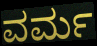
ವರ್ಮ